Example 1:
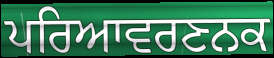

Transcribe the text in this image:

ਪਰਿਆਵਰਣਨਕ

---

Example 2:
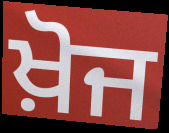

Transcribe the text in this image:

ਖ਼ੋਜ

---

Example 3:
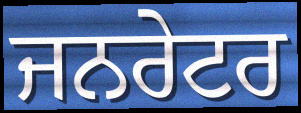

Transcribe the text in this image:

ਜਨਰੇਟਰ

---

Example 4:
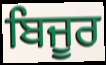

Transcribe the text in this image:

ਬਿਜੂਰ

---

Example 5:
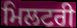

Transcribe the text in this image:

ਮਿਲਟਰੀ